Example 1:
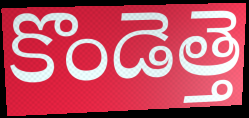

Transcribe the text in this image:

కొండెత్తె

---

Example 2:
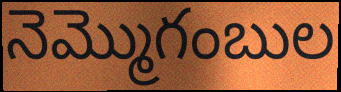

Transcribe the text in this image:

నెమ్మొగంబుల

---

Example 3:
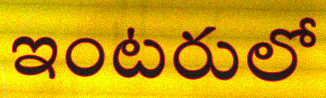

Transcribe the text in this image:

ఇంటరులో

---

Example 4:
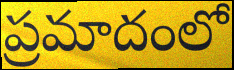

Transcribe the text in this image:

ప్రమాదంలో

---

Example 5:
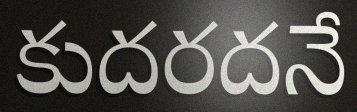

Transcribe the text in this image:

కుదరదనే